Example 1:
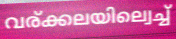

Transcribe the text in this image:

വര്ക്കലയില്വെച്ച്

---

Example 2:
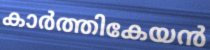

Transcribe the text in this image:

കാർത്തികേയൻ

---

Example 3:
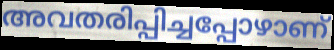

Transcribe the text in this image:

അവതരിപ്പിച്ചപ്പോഴാണ്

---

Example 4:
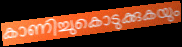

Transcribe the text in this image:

കാണിച്ചുകൊടുക്കുകയും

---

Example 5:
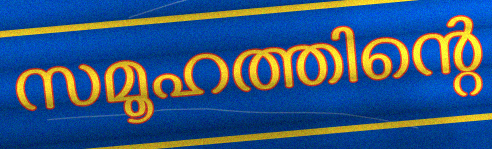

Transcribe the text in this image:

സമൂഹത്തിന്റെ